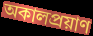
অকালপ্রয়াণ